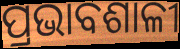
ପ୍ରଭାବଶାଳୀ